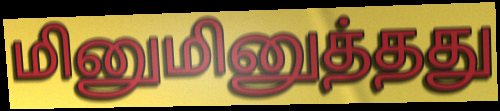
மினுமினுத்தது